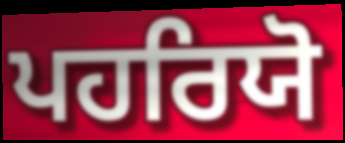
ਪਹਰਿਯੋ